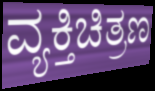
ವ್ಯಕ್ತಿಚಿತ್ರಣ